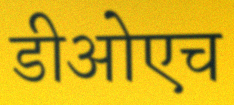
डीओएच